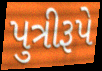
પુત્રીરૂપે